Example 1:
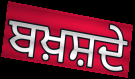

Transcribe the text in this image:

ਬਖ਼ਸ਼ਦੇ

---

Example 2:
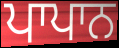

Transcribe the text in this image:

ਪਾਪਾਨ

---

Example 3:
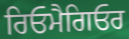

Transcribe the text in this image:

ਰਿਓਮੈਗਿਓਰ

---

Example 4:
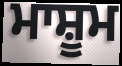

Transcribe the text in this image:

ਮਾਸ਼ੂਮ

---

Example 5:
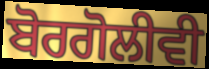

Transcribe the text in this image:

ਬੋਰਗੋਲੀਵੀ